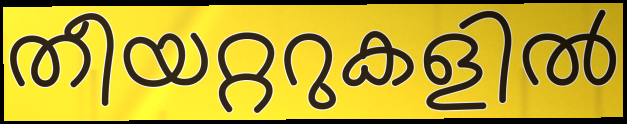
തീയറ്ററുകളിൽ